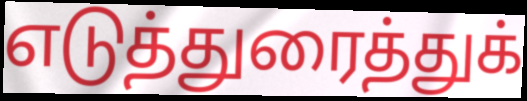
எடுத்துரைத்துக்